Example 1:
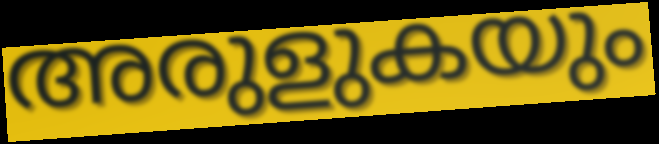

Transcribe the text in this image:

അരുളുകയും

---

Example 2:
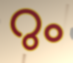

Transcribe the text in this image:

റും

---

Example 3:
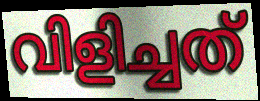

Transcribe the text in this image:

വിളിച്ചത്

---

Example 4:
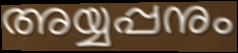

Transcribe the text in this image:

അയ്യപ്പനും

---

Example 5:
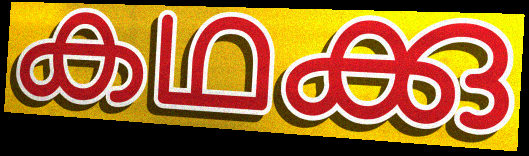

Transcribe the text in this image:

കഥക്കു